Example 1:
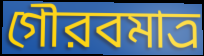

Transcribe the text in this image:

গৌরবমাত্র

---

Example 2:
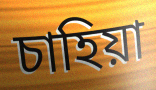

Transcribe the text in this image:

চাহিয়া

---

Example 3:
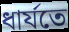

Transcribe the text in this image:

ধার্যতে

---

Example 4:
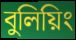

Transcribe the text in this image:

বুলিয়িং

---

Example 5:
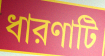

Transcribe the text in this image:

ধারণাটি